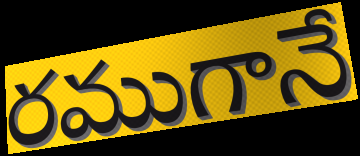
రముగానే